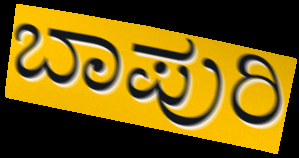
ಬಾಪುರಿ